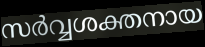
സർവ്വശക്തനായ